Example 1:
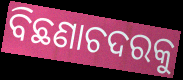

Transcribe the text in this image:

ବିଛଣାଚଦରକୁ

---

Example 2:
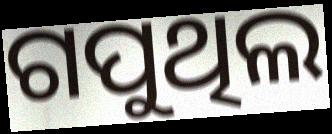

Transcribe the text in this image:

ଗପୁଥିଲ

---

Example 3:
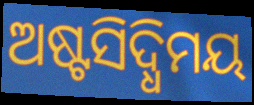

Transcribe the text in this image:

ଅଷ୍ଟସିଦ୍ଧିମୟ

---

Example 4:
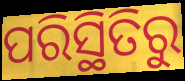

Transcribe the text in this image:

ପରିସ୍ଥିତିରୁ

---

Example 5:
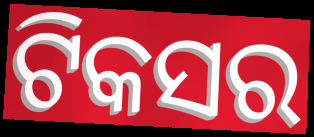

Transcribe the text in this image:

ଟିକସର